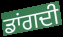
ਡਾਂਗਦੀ